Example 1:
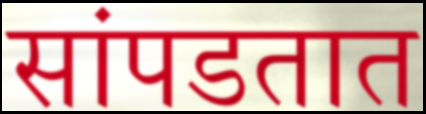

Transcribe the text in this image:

सांपडतात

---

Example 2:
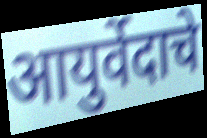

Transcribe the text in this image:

आयुर्वेदाचे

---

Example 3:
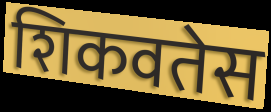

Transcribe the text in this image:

शिकवतेस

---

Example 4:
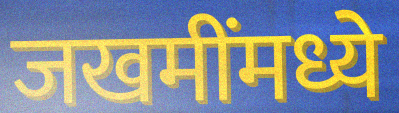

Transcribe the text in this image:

जखमींमध्ये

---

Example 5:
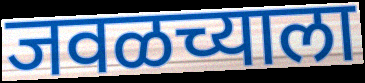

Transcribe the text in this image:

जवळच्याला